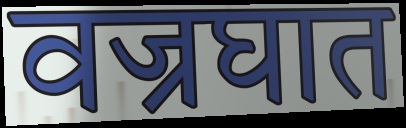
वज्रघात